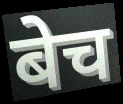
बेच